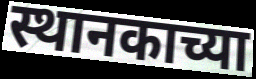
स्थानकाच्या